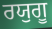
ਰਯੁਗੂ